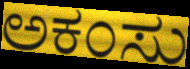
ಅಕಂಸು